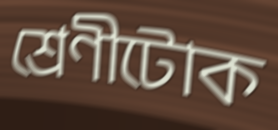
শ্ৰেণীটোক